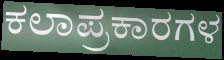
ಕಲಾಪ್ರಕಾರಗಳ